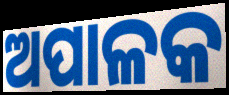
ଅପାଳକ